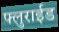
फ्लुराईड